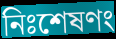
নিঃশেষণং